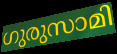
ഗുരുസാമി